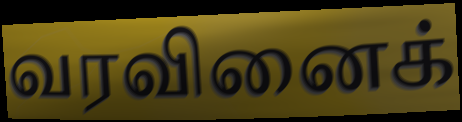
வரவினைக்